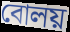
বোলয়